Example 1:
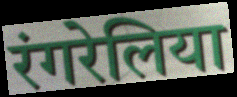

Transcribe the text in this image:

रंगरेलिया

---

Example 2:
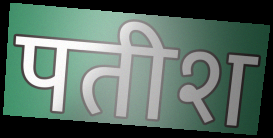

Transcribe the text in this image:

पतीश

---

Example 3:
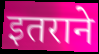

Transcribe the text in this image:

इतराने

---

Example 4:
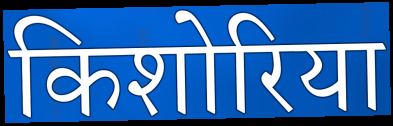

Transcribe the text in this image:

किशोरिया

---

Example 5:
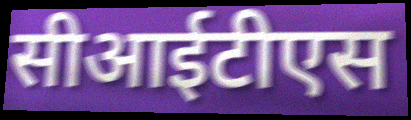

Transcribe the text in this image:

सीआईटीएस